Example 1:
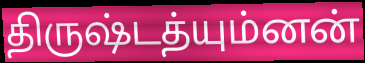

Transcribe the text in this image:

திருஷ்டத்யும்னன்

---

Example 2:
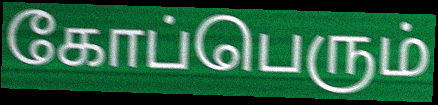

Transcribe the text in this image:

கோப்பெரும்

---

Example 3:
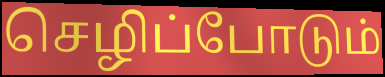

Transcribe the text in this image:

செழிப்போடும்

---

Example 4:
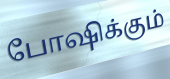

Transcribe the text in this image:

போஷிக்கும்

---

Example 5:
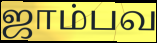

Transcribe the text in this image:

ஜாம்பவ